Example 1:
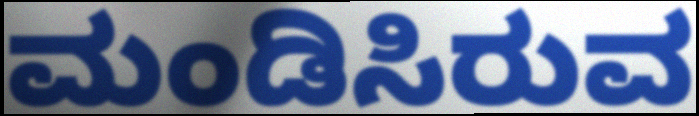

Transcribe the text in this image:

ಮಂಡಿಸಿರುವ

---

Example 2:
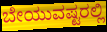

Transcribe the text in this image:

ಬೇಯುವಷ್ಟರಲ್ಲಿ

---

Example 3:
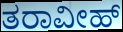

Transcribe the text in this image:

ತರಾವೀಹ್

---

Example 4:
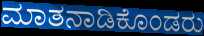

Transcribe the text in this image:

ಮಾತನಾಡಿಕೊಂಡರು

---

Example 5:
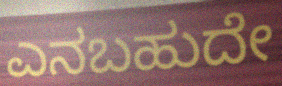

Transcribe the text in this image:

ಎನಬಹುದೇ